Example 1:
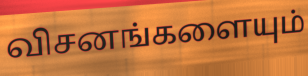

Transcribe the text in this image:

விசனங்களையும்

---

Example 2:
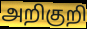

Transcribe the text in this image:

அறிகுறி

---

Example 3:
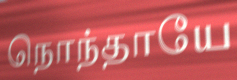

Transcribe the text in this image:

நொந்தாயே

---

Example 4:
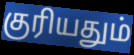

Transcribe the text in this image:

குரியதும்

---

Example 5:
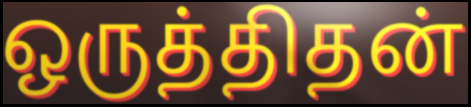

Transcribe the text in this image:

ஒருத்திதன்